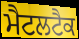
ਮੈਟਲਟੈਕ